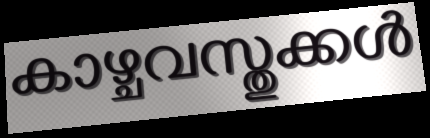
കാഴ്ചവസ്തുക്കൾ